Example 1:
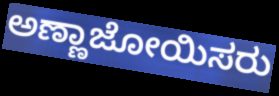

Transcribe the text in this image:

ಅಣ್ಣಾಜೋಯಿಸರು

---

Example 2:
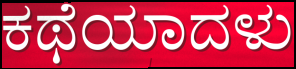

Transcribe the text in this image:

ಕಥೆಯಾದಳು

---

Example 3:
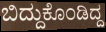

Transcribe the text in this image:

ಬಿದ್ದುಕೊಂಡಿದ್ದ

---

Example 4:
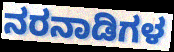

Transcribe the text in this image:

ನರನಾಡಿಗಳ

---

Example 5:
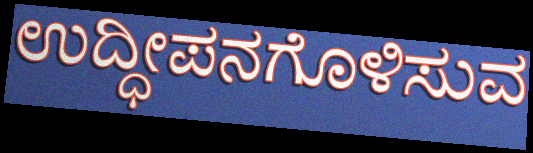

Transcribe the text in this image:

ಉದ್ಧೀಪನಗೊಳಿಸುವ